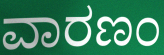
ವಾರಣಂ